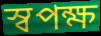
স্বপক্ষ